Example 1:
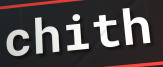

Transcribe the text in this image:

chith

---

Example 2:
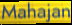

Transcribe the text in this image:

Mahajan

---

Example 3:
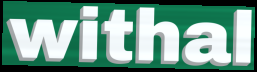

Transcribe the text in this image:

withal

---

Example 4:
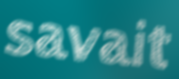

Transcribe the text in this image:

savait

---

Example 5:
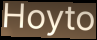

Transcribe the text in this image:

Hoyto